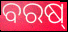
ବରଷ୍